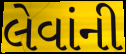
લેવાંની